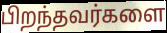
பிறந்தவர்களை